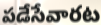
పడేసేవారట